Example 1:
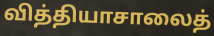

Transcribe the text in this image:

வித்தியாசாலைத்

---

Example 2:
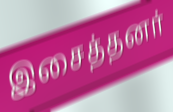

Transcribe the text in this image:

இசைத்தனர்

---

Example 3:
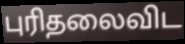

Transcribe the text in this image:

புரிதலைவிட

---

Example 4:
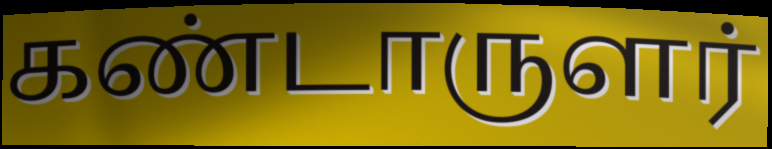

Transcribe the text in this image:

கண்டாருளர்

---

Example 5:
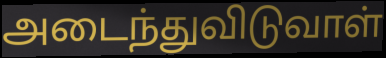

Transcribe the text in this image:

அடைந்துவிடுவாள்